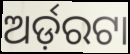
ଅର୍ଡ଼ରଟା